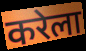
करेला